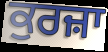
ਕੁਰਜ਼ਾ